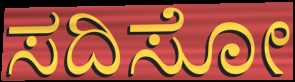
ಸದಿಸೋ